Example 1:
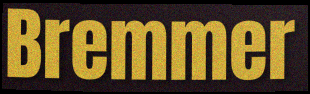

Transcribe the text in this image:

Bremmer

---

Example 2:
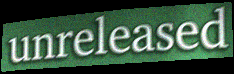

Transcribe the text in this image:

unreleased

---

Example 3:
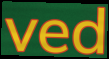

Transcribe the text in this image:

ved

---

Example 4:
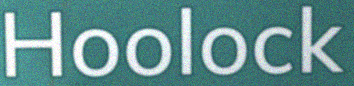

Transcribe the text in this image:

Hoolock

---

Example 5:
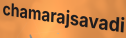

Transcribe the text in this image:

chamarajsavadi